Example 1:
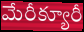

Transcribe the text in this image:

మేరీక్యూరీ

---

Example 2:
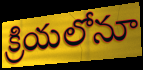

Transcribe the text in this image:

క్రియలోనూ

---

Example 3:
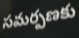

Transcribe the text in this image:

సమర్పణకు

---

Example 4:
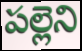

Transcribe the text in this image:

పల్లెని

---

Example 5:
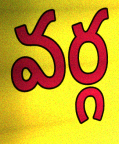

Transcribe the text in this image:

వర్గ